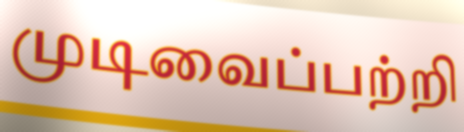
முடிவைப்பற்றி